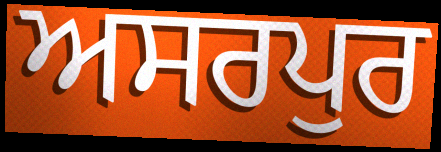
ਅਸਰਪੁਰ